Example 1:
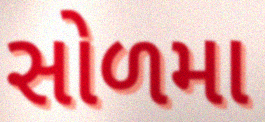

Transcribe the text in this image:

સોળમા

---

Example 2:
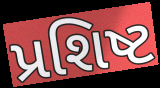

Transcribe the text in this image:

પ્રશિષ્ટ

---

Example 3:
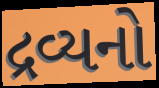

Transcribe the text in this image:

દ્રવ્યનો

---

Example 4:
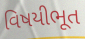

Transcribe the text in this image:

વિષયીભૂત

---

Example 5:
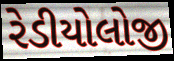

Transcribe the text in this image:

રેડીયોલોજી